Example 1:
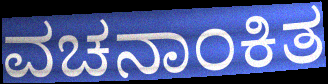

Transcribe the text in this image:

ವಚನಾಂಕಿತ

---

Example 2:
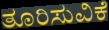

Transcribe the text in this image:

ತೂರಿಸುವಿಕೆ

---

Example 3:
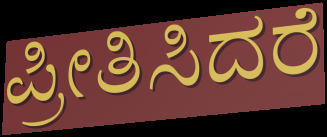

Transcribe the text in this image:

ಪ್ರೀತಿಸಿದರೆ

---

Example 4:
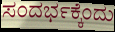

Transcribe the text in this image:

ಸಂದರ್ಭಕ್ಕೆಂದು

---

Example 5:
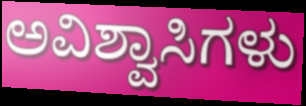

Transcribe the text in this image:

ಅವಿಶ್ವಾಸಿಗಳು